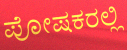
ಪೋಷಕರಲ್ಲಿ